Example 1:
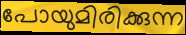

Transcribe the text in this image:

പോയുമിരിക്കുന്ന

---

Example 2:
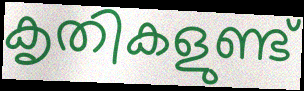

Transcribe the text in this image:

കൃതികളുണ്ട്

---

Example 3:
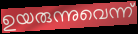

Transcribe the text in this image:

ഉയരുന്നുവെന്ന്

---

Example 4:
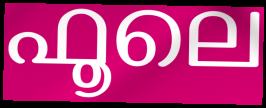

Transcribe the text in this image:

ഫൂലെ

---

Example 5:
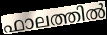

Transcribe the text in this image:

ഫാലത്തിൽ